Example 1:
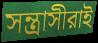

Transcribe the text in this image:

সন্ত্রাসীরাই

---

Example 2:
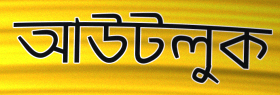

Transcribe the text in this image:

আউটলুক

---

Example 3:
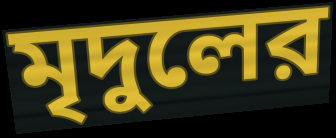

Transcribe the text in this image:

মৃদুলের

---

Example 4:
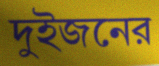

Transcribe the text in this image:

দুইজনের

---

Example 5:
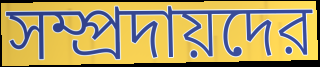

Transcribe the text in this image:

সম্প্রদায়দের